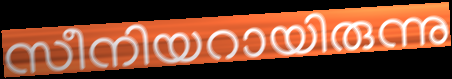
സീനിയറായിരുന്നു